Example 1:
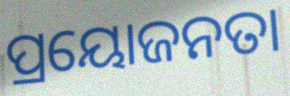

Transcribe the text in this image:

ପ୍ରୟୋଜନତା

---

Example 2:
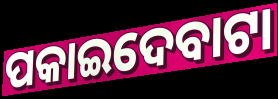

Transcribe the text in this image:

ପକାଇଦେବାଟା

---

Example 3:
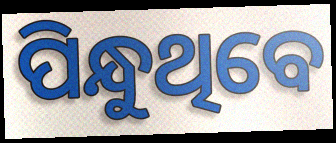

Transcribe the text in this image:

ପିନ୍ଧୁଥିବେ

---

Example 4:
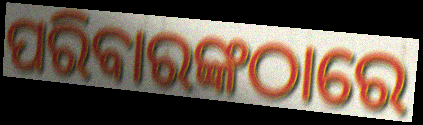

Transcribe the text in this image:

ପରିବାରଙ୍କଠାରେ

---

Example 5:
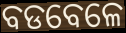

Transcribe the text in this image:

ବଡବେଳେ